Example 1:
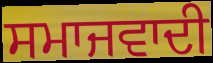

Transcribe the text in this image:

ਸਮਾਜਵਾਦੀ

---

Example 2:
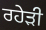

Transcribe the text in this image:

ਰਹੇੜੀ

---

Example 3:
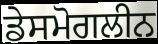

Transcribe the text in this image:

ਡੇਸਮੋਗਲੀਨ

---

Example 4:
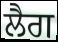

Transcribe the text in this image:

ਲੈਗ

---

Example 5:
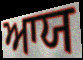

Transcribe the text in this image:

ਆਯ